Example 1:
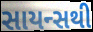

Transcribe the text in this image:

સાયન્સથી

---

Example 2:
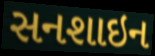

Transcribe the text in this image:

સનશાઇન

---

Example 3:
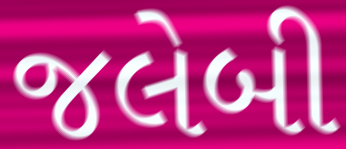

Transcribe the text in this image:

જલેબી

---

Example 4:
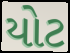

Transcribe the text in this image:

યોટ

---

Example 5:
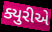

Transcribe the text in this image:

ક્યુરીએ